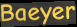
Baeyer